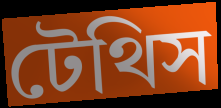
টেথিস